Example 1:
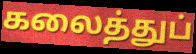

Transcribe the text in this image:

கலைத்துப்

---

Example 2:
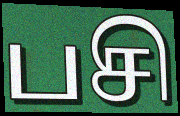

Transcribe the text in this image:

பசி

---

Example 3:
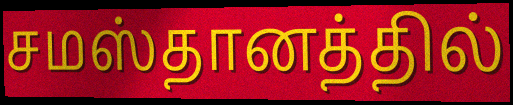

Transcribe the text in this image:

சமஸ்தானத்தில்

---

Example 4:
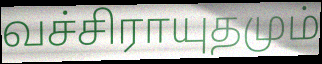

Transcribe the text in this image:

வச்சிராயுதமும்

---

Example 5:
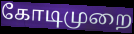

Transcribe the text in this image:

கோடிமுறை